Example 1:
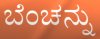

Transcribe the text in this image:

ಬೆಂಚನ್ನು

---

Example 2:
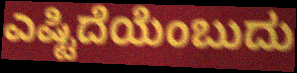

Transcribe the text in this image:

ಎಷ್ಟಿದೆಯೆಂಬುದು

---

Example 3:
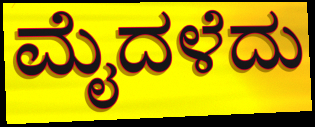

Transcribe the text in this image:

ಮೈದಳೆದು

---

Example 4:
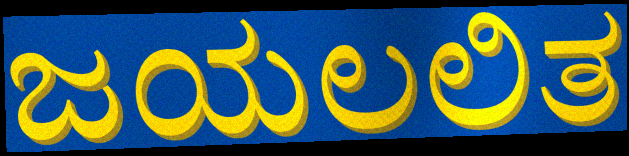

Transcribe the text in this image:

ಜಯಲಲಿತ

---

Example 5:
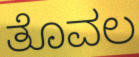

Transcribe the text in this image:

ತೊವಲ